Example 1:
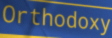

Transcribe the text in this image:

Orthodoxy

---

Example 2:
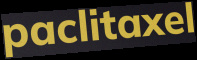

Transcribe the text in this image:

paclitaxel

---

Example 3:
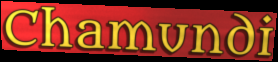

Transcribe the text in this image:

Chamundi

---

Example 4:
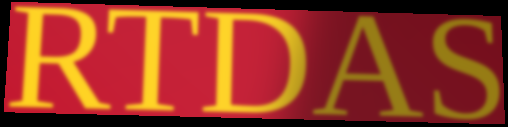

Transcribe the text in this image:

RTDAS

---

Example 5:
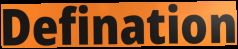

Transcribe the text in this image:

Defination